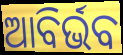
ଆବିର୍ଭବ